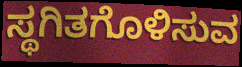
ಸ್ಥಗಿತಗೊಳಿಸುವ